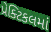
પ્રેક્ટિકલમાં